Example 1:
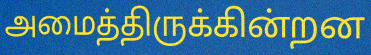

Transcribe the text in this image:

அமைத்திருக்கின்றன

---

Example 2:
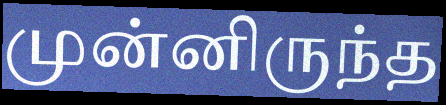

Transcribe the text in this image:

முன்னிருந்த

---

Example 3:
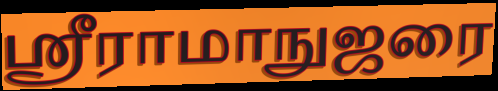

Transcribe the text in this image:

ஸ்ரீராமாநுஜரை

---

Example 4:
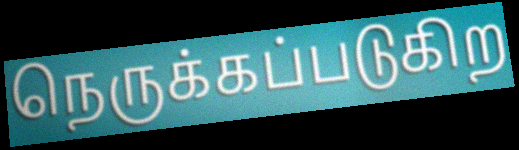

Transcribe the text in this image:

நெருக்கப்படுகிற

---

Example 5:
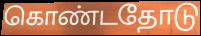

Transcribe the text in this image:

கொண்டதோடு